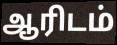
ஆரிடம்